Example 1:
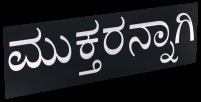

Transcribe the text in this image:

ಮುಕ್ತರನ್ನಾಗಿ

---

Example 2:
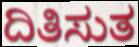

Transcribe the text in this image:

ದಿತಿಸುತ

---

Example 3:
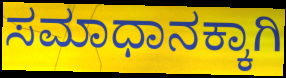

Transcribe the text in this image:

ಸಮಾಧಾನಕ್ಕಾಗಿ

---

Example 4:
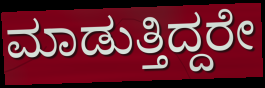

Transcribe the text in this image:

ಮಾಡುತ್ತಿದ್ದರೇ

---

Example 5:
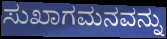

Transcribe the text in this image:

ಸುಖಾಗಮನವನ್ನು